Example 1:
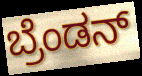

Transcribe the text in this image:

ಬ್ರೆಂಡನ್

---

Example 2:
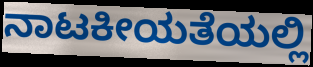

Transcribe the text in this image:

ನಾಟಕೀಯತೆಯಲ್ಲಿ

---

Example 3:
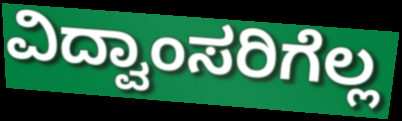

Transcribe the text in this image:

ವಿದ್ವಾಂಸರಿಗೆಲ್ಲ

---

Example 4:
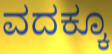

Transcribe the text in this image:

ವದಕ್ಕೂ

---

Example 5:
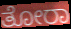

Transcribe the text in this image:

ತೋರಾ